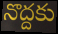
నొద్దకు